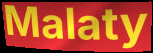
Malaty